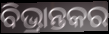
ବିଭ୍ରାନ୍ତକର